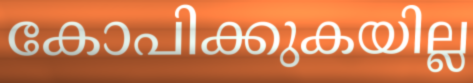
കോപിക്കുകയില്ല